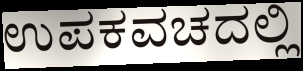
ಉಪಕವಚದಲ್ಲಿ